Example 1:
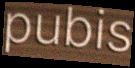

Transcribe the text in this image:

pubis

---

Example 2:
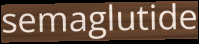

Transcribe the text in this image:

semaglutide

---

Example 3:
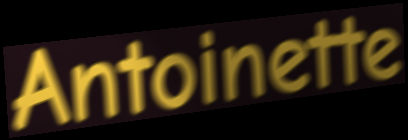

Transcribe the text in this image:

Antoinette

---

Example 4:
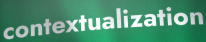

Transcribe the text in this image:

contextualization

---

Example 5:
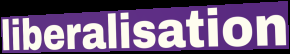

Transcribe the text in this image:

liberalisation